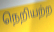
நெறியற்ற